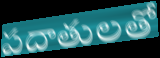
పదాతులతో